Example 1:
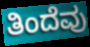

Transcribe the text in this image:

ತಿಂದೆವು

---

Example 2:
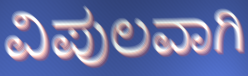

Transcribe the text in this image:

ವಿಪುಲವಾಗಿ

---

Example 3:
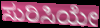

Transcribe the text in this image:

ಸುರಿಸಿಯೇ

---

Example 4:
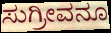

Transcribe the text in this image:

ಸುಗ್ರೀವನೂ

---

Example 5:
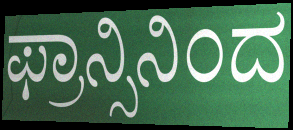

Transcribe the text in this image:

ಫ್ರಾನ್ಸಿನಿಂದ